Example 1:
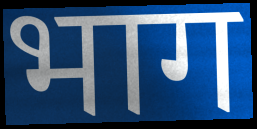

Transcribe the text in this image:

भाग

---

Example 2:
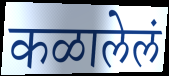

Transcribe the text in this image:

कळालेलं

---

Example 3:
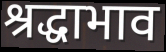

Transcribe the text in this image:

श्रद्धाभाव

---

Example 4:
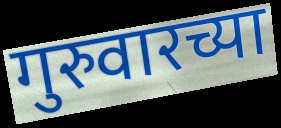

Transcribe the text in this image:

गुरुवारच्या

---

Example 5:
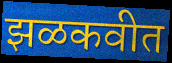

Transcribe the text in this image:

झळकवीत